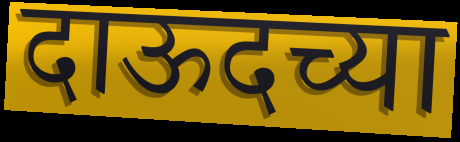
दाऊदच्या